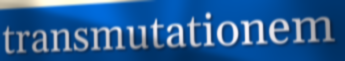
transmutationem